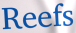
Reefs